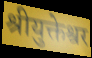
श्रीयुक्तेश्वर